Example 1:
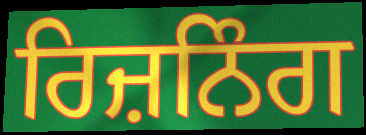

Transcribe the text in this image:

ਰਿਜ਼ਨਿੰਗ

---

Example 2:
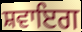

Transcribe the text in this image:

ਸ਼ਵਾਇਗ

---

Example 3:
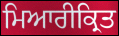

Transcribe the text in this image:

ਮਿਆਰੀਕ੍ਰਿਤ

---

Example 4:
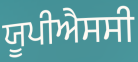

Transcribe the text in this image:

ਯੂਪੀਐਸਸੀ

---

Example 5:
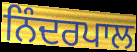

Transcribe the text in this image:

ਨਿੰਦਰਪਾਲ